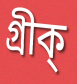
গ্রীক্